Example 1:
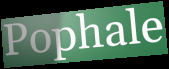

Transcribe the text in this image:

Pophale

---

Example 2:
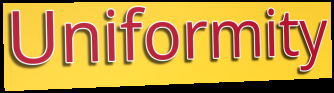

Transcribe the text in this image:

Uniformity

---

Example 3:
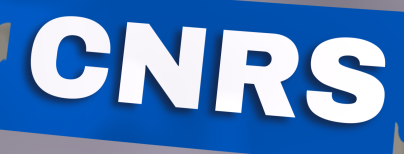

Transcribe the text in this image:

CNRS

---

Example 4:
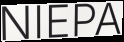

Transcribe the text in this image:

NIEPA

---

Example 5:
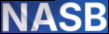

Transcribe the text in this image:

NASB